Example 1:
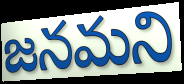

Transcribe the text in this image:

జనమని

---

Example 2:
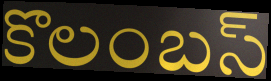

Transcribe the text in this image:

కొలంబస్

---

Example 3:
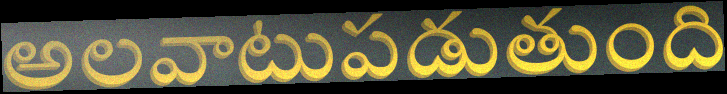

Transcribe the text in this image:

అలవాటుపడుతుంది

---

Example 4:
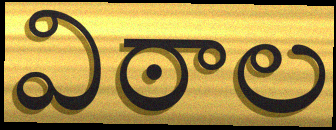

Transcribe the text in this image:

విఠాల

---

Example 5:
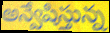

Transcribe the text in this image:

అన్వేషిస్తున్న